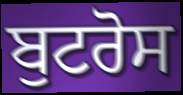
ਬੁਟਰੋਸ